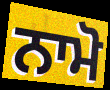
ਨਾਮੋ